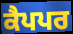
ਕੈਪਪਰ